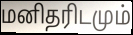
மனிதரிடமும்